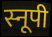
स्नूपी